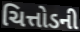
ચિત્તોડની